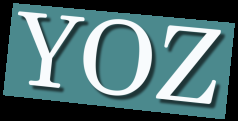
YOZ